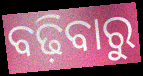
ବଢ଼ିବାରୁ